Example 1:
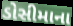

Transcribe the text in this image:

ડોસીમાના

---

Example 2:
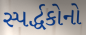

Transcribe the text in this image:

સ્પર્દ્ધકોનો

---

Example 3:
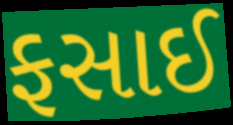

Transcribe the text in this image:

ફસાઈ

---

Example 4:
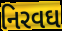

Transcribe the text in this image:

નિરવઘ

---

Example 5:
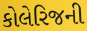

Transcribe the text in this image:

કોલેરિજની